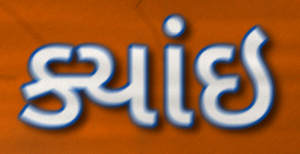
ક્યાંઇ